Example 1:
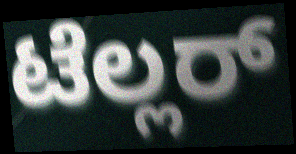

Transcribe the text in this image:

ಟೆಲ್ಲರ್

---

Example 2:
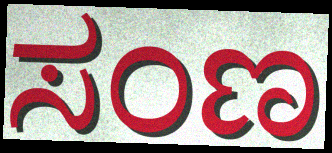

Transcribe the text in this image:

ಸಂಣ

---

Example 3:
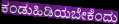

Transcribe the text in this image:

ಕಂಡುಹಿಡಿಯಬೇಕೆಂದು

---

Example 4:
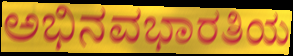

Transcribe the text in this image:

ಅಭಿನವಭಾರತಿಯ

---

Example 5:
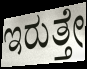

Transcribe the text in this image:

ಇರುತ್ತೇ